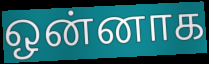
ஒன்னாக